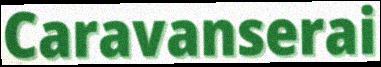
Caravanserai